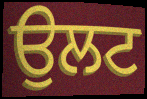
ਉਲਟ